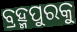
ବ୍ରହ୍ମପୁରକୁ